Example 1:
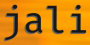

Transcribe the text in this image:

jali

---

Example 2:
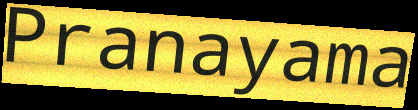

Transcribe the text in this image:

Pranayama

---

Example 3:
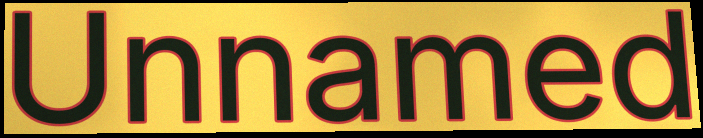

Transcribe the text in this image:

Unnamed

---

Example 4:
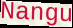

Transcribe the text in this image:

Nangu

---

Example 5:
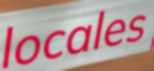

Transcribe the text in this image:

locales